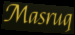
Masruq